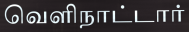
வெளிநாட்டார்